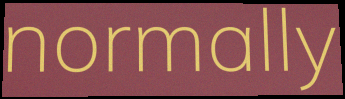
normally